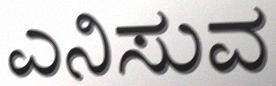
ಎನಿಸುವ